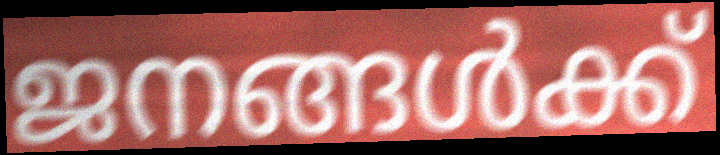
ജനങ്ങൾക്ക്